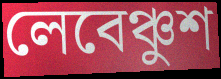
লেবেঞ্চুশ